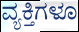
ವ್ಯಕ್ತಿಗಳೂ